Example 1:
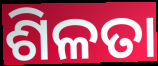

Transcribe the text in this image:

ଶିଳତା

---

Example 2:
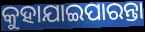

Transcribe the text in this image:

କୁହାଯାଇପାରନ୍ତା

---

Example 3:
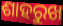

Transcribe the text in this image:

ଶାହରୁଖ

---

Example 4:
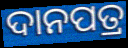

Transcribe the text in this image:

ଦାନପତ୍ର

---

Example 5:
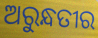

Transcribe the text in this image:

ଅରୁନ୍ଧତୀର